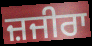
ਜ਼ਜੀਰਾ